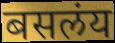
बसलंय